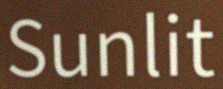
Sunlit